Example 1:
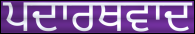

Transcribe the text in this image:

ਪਦਾਰਥਵਾਦ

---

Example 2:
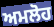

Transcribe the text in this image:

ਅਮਲੋਹ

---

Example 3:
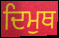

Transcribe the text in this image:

ਦਿਮੁਥ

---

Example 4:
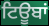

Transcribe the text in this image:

ਟਿਊਬਾਂ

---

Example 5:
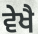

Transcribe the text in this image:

ਵੇਖੈ